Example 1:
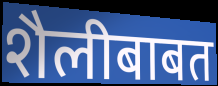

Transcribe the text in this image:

शैलीबाबत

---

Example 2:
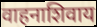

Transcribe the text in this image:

वाहनाशिवाय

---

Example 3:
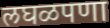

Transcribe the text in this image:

लघळपणा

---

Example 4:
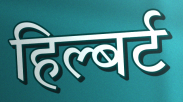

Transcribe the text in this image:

हिल्बर्ट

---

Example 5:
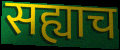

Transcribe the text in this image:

सह्याच